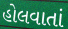
હોલવાતાં